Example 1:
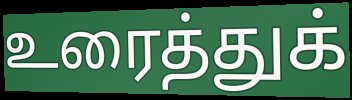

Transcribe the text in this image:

உரைத்துக்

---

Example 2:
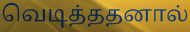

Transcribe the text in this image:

வெடித்ததனால்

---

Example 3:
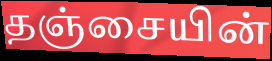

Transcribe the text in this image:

தஞ்சையின்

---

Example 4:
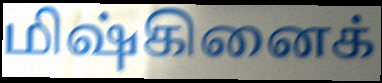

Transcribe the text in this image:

மிஷ்கினைக்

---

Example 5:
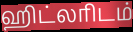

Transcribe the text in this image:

ஹிட்லரிடம்